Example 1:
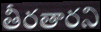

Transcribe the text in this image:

తీరతారని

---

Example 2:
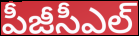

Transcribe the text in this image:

పీజీసీఎల్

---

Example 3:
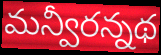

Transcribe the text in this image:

మన్వీరన్నథ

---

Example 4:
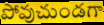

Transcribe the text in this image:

పోవుచుండగా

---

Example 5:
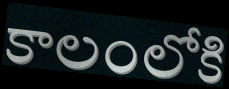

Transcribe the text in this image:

కాలంలోకి